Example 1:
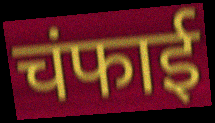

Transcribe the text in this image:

चंफाई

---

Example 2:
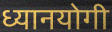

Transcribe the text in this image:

ध्यानयोगी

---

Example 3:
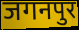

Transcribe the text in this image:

जगनपुर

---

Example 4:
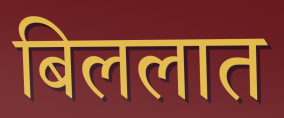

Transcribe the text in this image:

बिललात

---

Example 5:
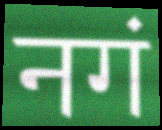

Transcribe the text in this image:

नगं